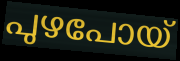
പുഴപോയ്